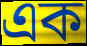
এক